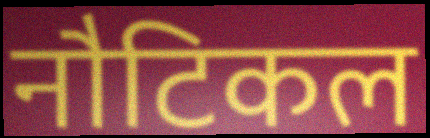
नौटिकल